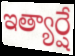
ఇత్యార్షే